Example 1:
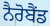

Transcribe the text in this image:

ਨੈਰੋਬੈਂਡ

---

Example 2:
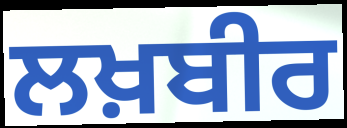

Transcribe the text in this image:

ਲਖ਼ਬੀਰ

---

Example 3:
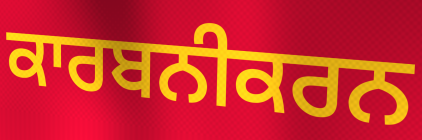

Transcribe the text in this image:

ਕਾਰਬਨੀਕਰਨ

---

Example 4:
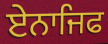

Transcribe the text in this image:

ਏਨਾਜਿਫ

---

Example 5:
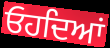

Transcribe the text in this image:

ਓਹਦਿਆਂ